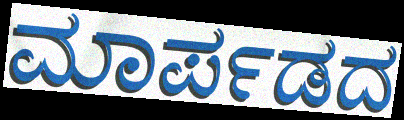
ಮಾರ್ಪಡದ